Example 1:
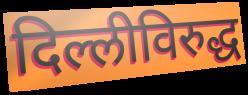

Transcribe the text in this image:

दिल्लीविरुद्ध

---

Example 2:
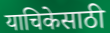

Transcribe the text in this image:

याचिकेसाठी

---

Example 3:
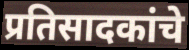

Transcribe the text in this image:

प्रतिसादकांचे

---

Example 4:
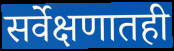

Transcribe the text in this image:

सर्वेक्षणातही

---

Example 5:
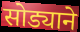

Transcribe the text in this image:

सोड्याने